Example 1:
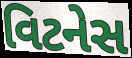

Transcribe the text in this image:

વિટનેસ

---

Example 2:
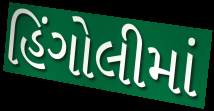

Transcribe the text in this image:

હિંગોલીમાં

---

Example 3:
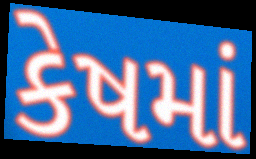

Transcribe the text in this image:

કેષમાં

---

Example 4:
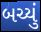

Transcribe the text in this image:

બચ્યું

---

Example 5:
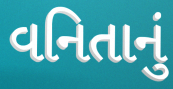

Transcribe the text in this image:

વનિતાનું